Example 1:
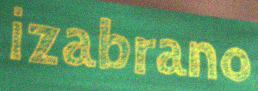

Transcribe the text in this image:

izabrano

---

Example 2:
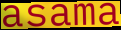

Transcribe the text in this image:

asama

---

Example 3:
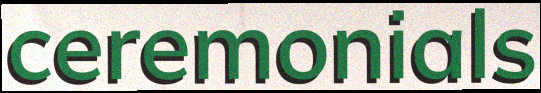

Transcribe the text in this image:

ceremonials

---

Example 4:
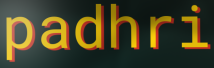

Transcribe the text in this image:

padhri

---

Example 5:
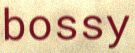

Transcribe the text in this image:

bossy